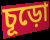
চূড়ো